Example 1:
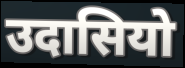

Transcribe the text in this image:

उदासियो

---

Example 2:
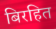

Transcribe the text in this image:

बिरहित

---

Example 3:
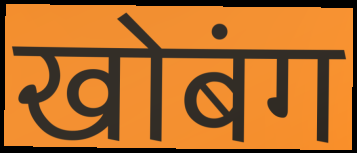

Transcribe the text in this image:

खोबंग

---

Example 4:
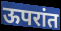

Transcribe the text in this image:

ऊपरांत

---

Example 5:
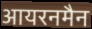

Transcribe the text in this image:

आयरनमैन